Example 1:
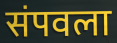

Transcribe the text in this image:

संपवला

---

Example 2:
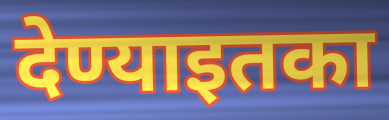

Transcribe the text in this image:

देण्याइतका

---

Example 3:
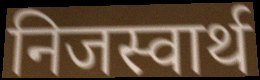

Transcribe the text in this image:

निजस्वार्थ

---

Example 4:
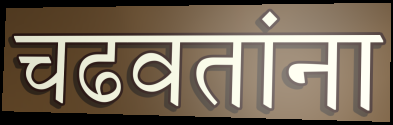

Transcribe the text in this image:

चढवतांना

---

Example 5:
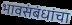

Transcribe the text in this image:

भावसंबंधांचा